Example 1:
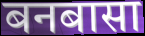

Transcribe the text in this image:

बनबासा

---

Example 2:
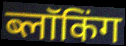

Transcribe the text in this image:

ब्लॉकिंग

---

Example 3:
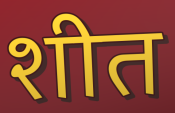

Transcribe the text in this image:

शीत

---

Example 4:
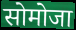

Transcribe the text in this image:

सोमोजा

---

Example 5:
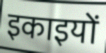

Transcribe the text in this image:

इकाइयों